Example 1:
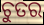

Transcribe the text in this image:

ଚୁତର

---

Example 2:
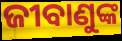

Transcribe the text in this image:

ଜୀବାଣୁଙ୍କ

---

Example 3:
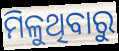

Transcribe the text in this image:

ମିଳୁଥିବାରୁ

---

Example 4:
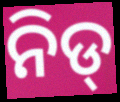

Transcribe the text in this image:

ନିଡ୍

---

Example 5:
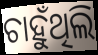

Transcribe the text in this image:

ଚାହୁଁଥିଲି